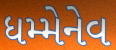
ધમ્મેનેવ